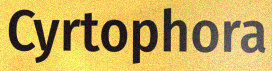
Cyrtophora